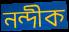
নন্দীক